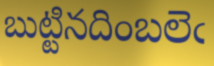
బుట్టినదింబలెఁ